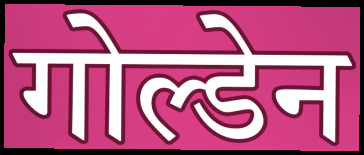
गोल्डेन